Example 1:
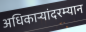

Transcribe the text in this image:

अधिकाऱ्यांदरम्यान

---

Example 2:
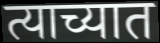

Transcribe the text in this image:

त्याच्यात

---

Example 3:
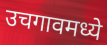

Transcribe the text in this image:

उचगावमध्ये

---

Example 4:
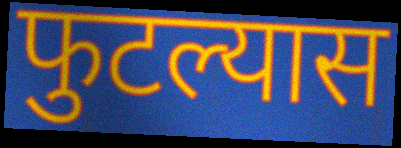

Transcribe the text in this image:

फुटल्यास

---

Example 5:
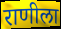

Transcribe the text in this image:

राणीला